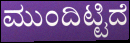
ಮುಂದಿಟ್ಟಿದೆ